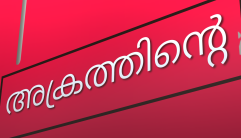
അക്രത്തിന്റെ